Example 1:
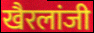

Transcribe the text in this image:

खैरलांजी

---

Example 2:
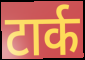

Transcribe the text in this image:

टार्क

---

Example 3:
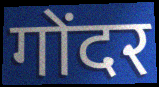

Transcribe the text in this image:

गोंदर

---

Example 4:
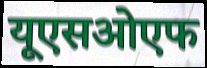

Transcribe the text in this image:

यूएसओएफ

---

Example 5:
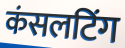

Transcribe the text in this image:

कंसलटिंग